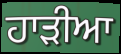
ਹਾੜੀਆ